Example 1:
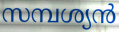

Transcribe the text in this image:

സമ്പശ്യൻ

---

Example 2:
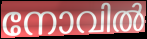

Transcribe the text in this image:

നോവിൽ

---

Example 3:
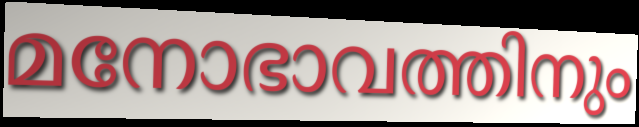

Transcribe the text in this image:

മനോഭാവത്തിനും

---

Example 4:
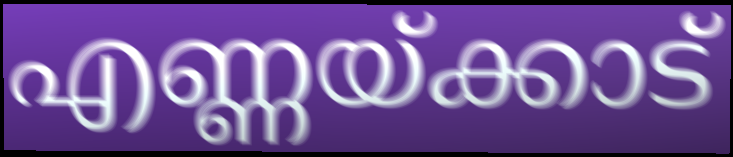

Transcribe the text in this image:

എണ്ണയ്ക്കാട്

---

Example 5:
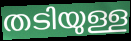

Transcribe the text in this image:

തടിയുള്ള